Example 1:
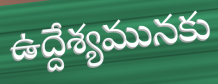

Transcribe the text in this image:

ఉద్దేశ్యమునకు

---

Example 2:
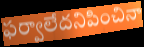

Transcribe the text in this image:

ఫర్వాలేదనిపించినా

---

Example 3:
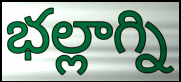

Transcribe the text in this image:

భల్లాగ్ని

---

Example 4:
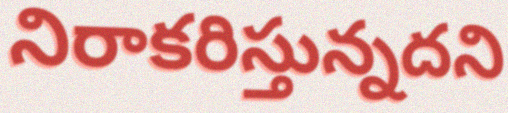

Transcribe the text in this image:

నిరాకరిస్తున్నదని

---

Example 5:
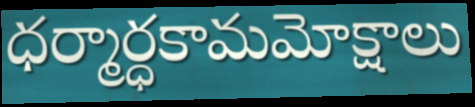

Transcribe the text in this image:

ధర్మార్ధకామమోక్షాలు